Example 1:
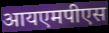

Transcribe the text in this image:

आयएमपीएस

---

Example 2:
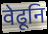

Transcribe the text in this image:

वेढूनि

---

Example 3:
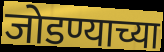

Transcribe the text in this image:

जोडण्याच्या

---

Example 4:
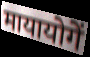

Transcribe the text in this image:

मायायोगें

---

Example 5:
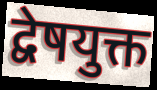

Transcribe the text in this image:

द्वेषयुक्त